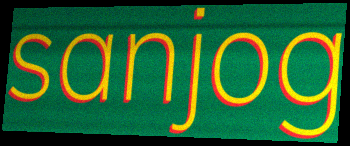
sanjog